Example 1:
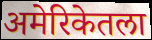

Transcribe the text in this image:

अमेरिकेतला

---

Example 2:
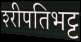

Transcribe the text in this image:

श्रीपतिभट्ट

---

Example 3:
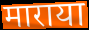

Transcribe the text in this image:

माराया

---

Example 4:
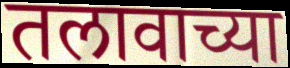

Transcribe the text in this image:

तलावाच्या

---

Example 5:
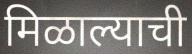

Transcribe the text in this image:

मिळाल्याची